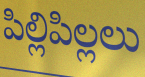
పిల్లిపిల్లలు